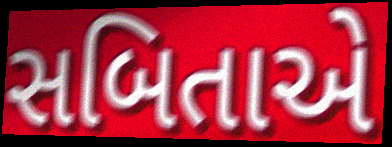
સબિતાએ